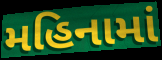
મહિનામાં